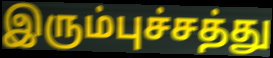
இரும்புச்சத்து